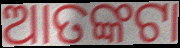
ଆତଙ୍କଟା